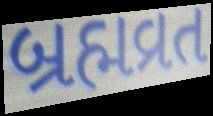
બ્રહ્મવ્રત